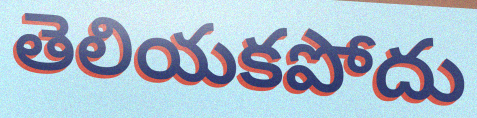
తెలియకపోదు